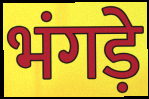
भंगड़े